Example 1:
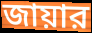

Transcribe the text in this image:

জায়ার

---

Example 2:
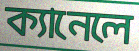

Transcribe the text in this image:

ক্যানেলে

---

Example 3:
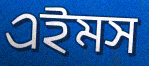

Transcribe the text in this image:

এইমস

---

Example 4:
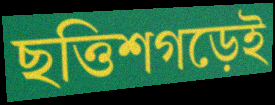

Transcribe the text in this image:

ছত্তিশগড়েই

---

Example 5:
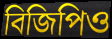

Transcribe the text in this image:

বিজিপিও